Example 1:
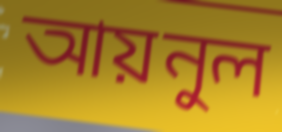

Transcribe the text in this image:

আয়নুল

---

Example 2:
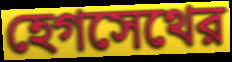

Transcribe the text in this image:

হেগসেথের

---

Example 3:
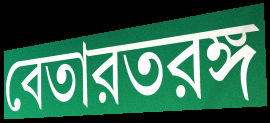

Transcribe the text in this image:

বেতারতরঙ্গ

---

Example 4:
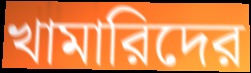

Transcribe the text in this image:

খামারিদের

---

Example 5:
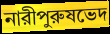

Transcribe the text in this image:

নারীপুরুষভেদ